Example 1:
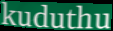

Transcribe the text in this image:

kuduthu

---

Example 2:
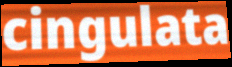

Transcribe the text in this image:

cingulata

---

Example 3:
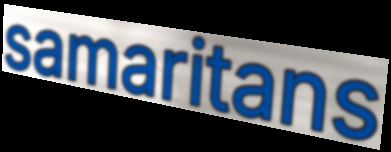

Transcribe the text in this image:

samaritans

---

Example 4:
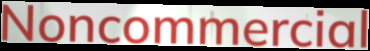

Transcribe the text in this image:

Noncommercial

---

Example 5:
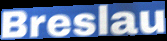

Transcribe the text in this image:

Breslau